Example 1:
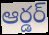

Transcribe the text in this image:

ఆర్డర్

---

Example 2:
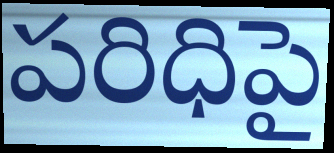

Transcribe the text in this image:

పరిధిపై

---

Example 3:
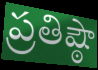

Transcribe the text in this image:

ప్రతిష్ఠౌ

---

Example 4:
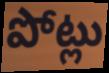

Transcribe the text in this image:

పోట్లు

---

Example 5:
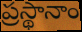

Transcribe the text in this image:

ప్రస్థానాం